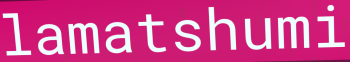
lamatshumi